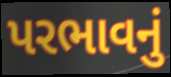
પરભાવનું